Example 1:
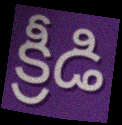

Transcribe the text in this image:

క్రీడి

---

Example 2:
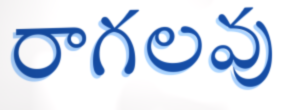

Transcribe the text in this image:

రాగలవు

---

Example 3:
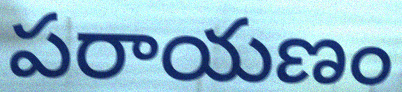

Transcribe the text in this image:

పరాయణం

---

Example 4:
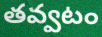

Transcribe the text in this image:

తవ్వటం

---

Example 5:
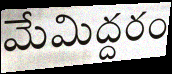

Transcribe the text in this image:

మేమిద్దరం